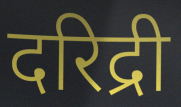
दरिद्री